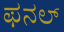
ಫನಲ್